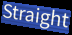
Straight